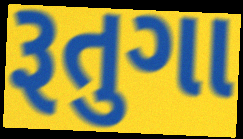
રૂતુગા